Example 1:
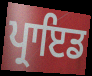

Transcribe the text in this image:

ਪ੍ਰਾਇਡ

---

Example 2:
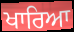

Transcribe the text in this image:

ਖਾਰਿਆ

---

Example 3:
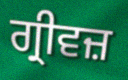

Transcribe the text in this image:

ਗ੍ਰੀਵਜ਼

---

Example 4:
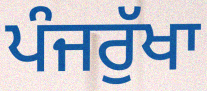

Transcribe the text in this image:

ਪੰਜਰੁੱਖਾ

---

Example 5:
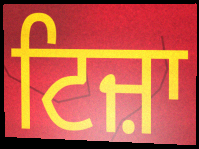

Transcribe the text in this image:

ਟਿਜ਼ਾ